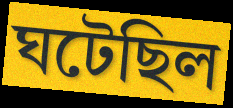
ঘটেছিল